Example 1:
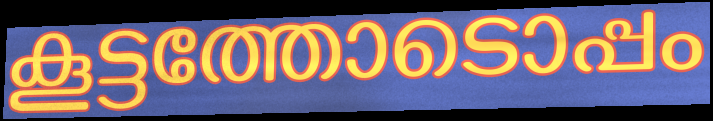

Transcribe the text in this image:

കൂട്ടത്തോടൊപ്പം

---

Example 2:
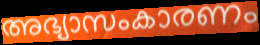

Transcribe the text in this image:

അഭ്യാസംകാരണം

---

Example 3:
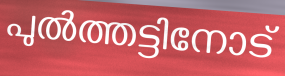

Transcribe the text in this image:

പുൽത്തട്ടിനോട്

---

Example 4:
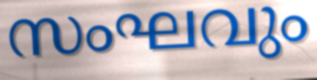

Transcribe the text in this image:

സംഘവും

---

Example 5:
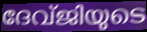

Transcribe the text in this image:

ദേവ്ജിയുടെ